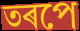
তৰপে